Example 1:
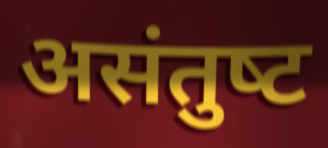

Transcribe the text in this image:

असंतुष्‍ट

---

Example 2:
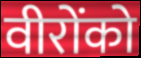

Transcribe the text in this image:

वीरोंको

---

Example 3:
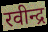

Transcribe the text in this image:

रवीन्द्र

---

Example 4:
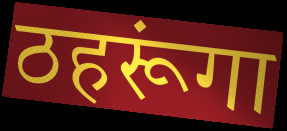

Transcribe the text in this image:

ठहरूंगा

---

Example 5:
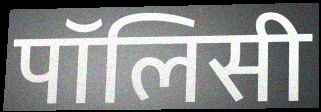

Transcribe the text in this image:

पॉलिसी